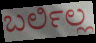
ಬರ್ಲಿಲ್ಲ